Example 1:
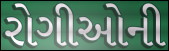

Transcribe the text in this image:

રોગીઓની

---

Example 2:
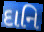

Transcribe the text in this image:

દાનિ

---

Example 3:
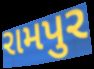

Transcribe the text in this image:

રામપુર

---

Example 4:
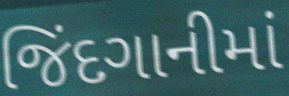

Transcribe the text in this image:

જિંદગાનીમાં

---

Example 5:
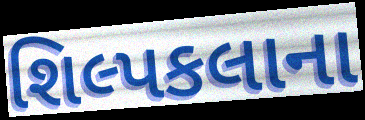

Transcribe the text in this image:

શિલ્પકલાના